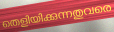
തെളിയിക്കുന്നതുവരെ